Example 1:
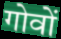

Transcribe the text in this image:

गोवों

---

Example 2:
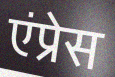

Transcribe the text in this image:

एंप्रेस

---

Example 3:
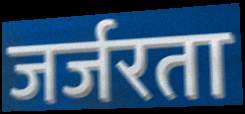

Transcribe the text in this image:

जर्जरता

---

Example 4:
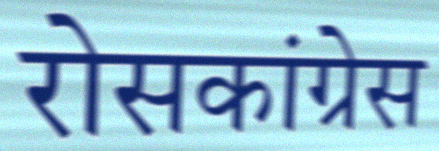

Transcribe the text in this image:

रोसकांग्रेस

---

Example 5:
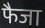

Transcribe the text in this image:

फैजा